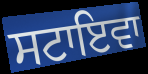
ਸਟਾਇਵਾ